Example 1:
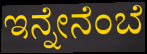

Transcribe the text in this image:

ಇನ್ನೇನೆಂಬೆ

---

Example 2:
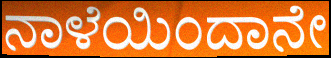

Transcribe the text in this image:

ನಾಳೆಯಿಂದಾನೇ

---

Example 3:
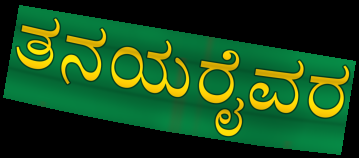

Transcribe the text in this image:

ತನಯರೈವರ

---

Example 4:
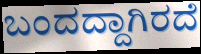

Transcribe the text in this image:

ಬಂದದ್ದಾಗಿರದೆ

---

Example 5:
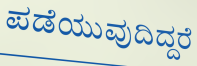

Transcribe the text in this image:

ಪಡೆಯುವುದಿದ್ದರೆ